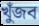
খুঁজব